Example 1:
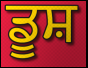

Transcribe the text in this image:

ਡੂਸ਼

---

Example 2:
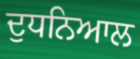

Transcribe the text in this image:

ਦੁਧਨਿਆਲ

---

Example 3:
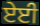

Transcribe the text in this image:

ਏਈ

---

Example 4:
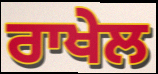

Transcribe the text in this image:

ਰਾਖੇਲ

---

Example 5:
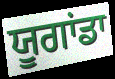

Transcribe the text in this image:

ਯੂਗਾਂਡਾ